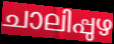
ചാലിപ്പുഴ